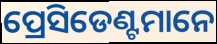
ପ୍ରେସିଡେଣ୍ଟମାନେ